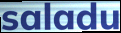
saladu